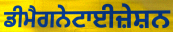
ਡੀਮੈਗਨੇਟਾਈਜ਼ੇਸ਼ਨ